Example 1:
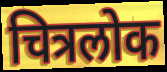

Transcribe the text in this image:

चित्रलोक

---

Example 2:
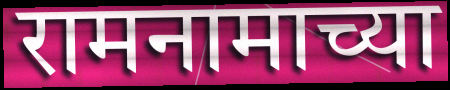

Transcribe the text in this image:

रामनामाच्या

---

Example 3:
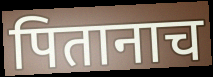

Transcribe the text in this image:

पितानाच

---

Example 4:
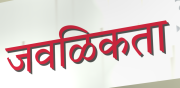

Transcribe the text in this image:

जवळिकता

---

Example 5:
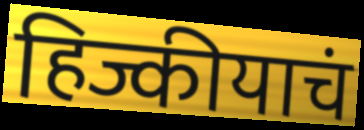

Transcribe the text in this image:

हिज्कीयाचं